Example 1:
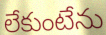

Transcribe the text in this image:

లేకుంటేను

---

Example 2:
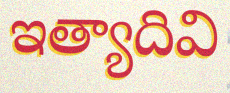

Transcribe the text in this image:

ఇత్యాదివి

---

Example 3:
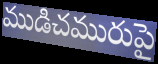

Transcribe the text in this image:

ముడిచమురుపై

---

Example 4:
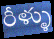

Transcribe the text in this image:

రీళ్ళు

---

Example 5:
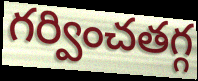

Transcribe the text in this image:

గర్వించతగ్గ